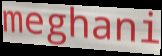
meghani